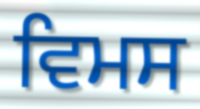
ਵਿਮਸ